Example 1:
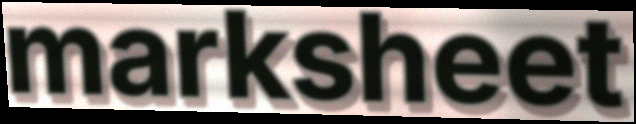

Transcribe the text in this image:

marksheet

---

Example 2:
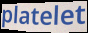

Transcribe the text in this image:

platelet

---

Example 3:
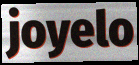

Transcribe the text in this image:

joyelo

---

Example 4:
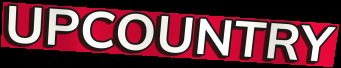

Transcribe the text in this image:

UPCOUNTRY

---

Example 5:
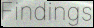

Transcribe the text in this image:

Findings